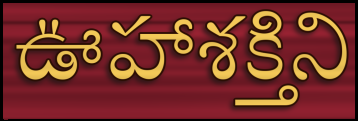
ఊహాశక్తిని